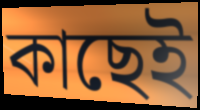
কাছেই